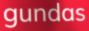
gundas